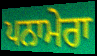
ਪਨਾਮੇਰਾ